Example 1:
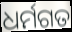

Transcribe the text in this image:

ଧର୍ମଗତ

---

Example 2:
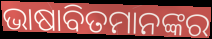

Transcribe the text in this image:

ଭାଷାବିତମାନଙ୍କର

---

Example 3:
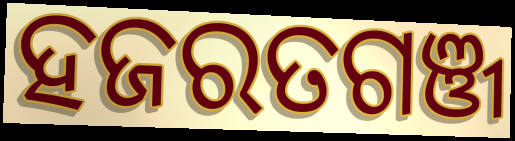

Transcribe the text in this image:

ହଜରତଗଞ୍ଜ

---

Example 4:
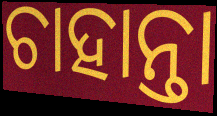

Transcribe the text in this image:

ଚାହାନ୍ତା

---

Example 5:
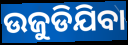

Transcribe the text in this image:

ଉଜୁଡିଯିବା